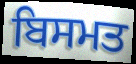
ਬਿਸਮਤ